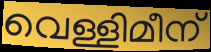
വെള്ളിമീന്